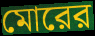
মোরের